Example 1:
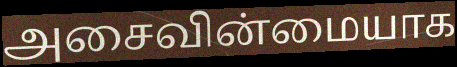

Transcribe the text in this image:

அசைவின்மையாக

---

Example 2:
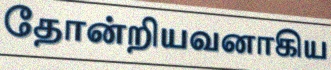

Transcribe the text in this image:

தோன்றியவனாகிய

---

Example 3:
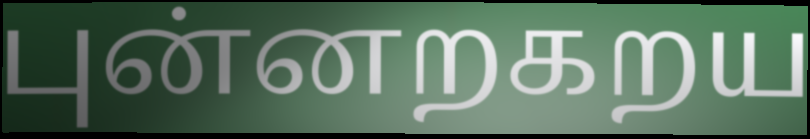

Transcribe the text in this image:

புன்னறகறய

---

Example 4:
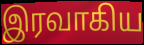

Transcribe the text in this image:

இரவாகிய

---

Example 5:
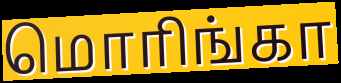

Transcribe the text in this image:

மொரிங்கா